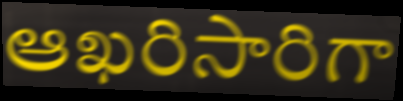
ఆఖరిసారిగా